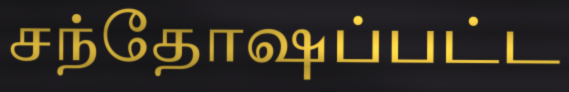
சந்தோஷப்பட்ட